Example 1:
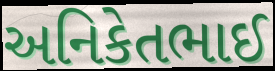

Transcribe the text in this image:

અનિકેતભાઈ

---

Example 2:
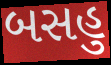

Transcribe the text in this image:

બસહુ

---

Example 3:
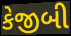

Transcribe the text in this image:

કેજીબી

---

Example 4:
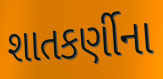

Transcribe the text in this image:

શાતકર્ણીના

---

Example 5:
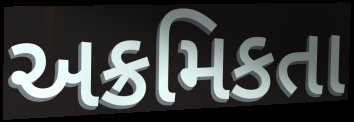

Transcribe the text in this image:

અક્રમિકતા